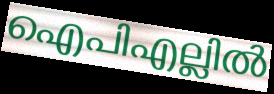
ഐപിഎല്ലിൽ